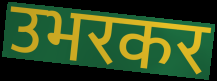
उभरकर